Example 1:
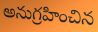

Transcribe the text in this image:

అనుగ్రహించిన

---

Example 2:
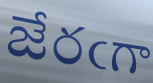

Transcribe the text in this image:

జేరఁగా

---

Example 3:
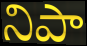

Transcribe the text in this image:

నిపా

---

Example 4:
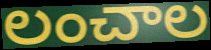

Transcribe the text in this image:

లంచాల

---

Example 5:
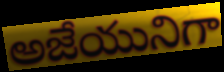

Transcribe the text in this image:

అజేయునిగా